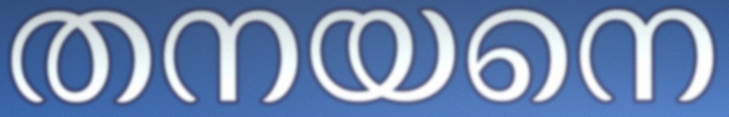
തനയനെ